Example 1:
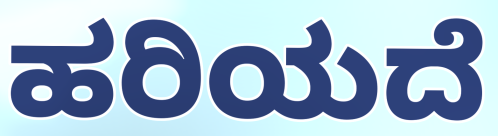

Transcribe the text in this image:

ಹರಿಯದೆ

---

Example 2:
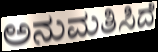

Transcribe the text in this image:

ಅನುಮತಿಸಿದೆ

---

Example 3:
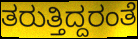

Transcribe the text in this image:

ತರುತ್ತಿದ್ದರಂತೆ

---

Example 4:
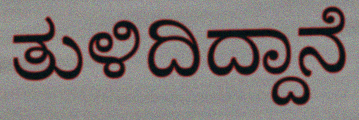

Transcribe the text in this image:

ತುಳಿದಿದ್ದಾನೆ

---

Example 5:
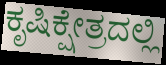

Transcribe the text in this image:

ಕೃಷಿಕ್ಷೇತ್ರದಲ್ಲಿ